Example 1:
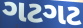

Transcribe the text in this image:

ગટગટ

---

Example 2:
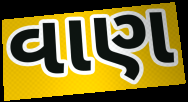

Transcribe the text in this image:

વાણ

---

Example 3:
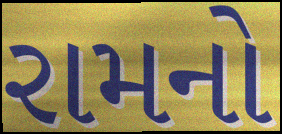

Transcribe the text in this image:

રામનો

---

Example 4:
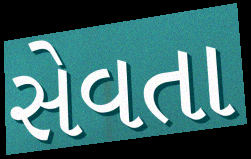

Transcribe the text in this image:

સેવતા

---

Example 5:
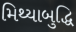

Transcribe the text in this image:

મિથ્યાબુદ્ધિ